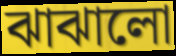
ঝাঝালো